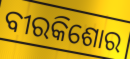
ବୀରକିଶୋର